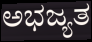
ಅಭಜ್ಯತ